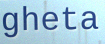
gheta